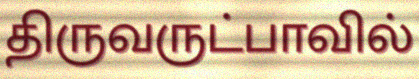
திருவருட்பாவில்